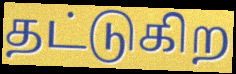
தட்டுகிற